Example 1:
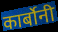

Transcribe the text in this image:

कार्बोनी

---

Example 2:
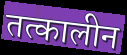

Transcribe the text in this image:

तत्कालीन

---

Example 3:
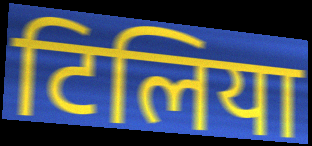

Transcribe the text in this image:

टिलिया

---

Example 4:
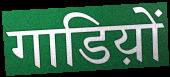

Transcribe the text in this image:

गाडिय़ों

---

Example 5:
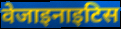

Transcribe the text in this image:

वेजाइनाइटिस